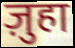
ज़ुहा